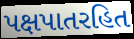
પક્ષપાતરહિત